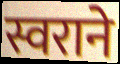
स्वराने